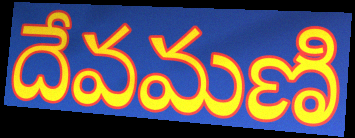
దేవమణి